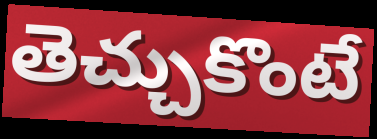
తెచ్చుకొంటే